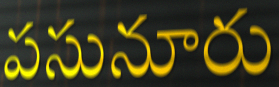
పసునూరు